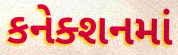
કનેક્શનમાં